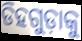
ଡିହଗୁଡ଼ାକୁ